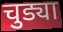
चुड्या